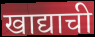
खाद्याची